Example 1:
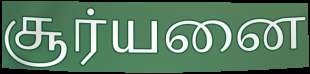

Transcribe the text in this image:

சூர்யனை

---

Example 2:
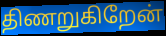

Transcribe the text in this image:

திணறுகிறேன்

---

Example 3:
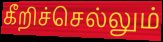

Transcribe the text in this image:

கீறிச்செல்லும்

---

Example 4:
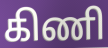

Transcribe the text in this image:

கிணி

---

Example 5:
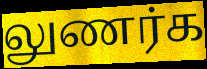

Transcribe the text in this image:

லுணர்க